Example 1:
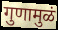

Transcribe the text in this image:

गुणामुळं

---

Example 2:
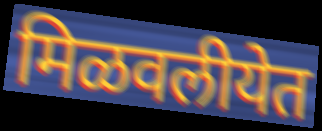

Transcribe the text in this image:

मिळवलीयेत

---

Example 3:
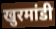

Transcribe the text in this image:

खुरमांडी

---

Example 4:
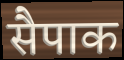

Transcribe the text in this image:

सैपाक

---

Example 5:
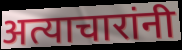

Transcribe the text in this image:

अत्याचारांनी